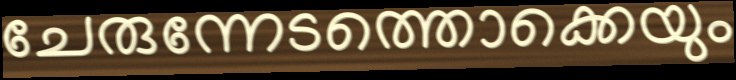
ചേരുന്നേടത്തൊക്കെയും